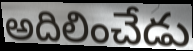
అదిలించేడు